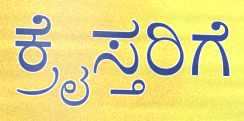
ಕ್ರೈಸ್ತರಿಗೆ